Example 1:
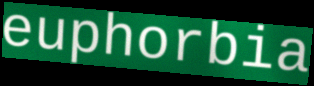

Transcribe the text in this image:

euphorbia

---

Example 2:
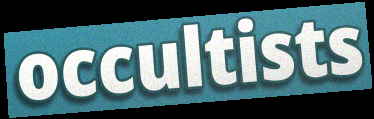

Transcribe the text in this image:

occultists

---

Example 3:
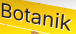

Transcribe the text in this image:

Botanik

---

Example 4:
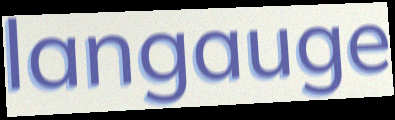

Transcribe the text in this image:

langauge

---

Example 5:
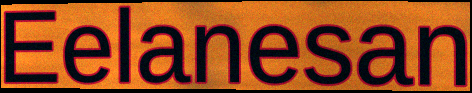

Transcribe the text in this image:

Eelanesan